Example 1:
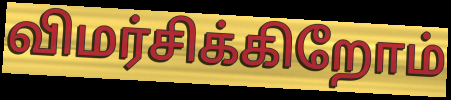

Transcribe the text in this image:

விமர்சிக்கிறோம்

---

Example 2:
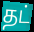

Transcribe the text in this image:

தட்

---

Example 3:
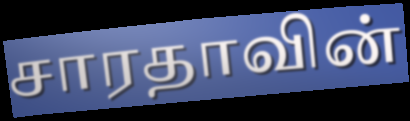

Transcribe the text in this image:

சாரதாவின்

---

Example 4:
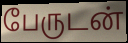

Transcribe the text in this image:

பேருடன்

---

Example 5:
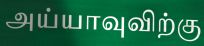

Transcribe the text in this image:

அய்யாவுவிற்கு